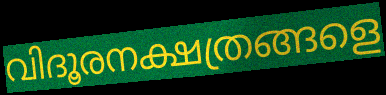
വിദൂരനക്ഷത്രങ്ങളെ